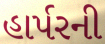
હાર્પરની